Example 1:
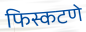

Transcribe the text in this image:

फिस्कटणे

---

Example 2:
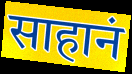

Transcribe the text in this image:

साहानं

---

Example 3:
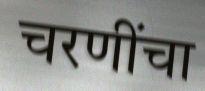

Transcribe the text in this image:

चरणींचा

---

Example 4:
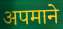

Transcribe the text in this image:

अपमाने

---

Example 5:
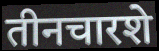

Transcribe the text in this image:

तीनचारशे